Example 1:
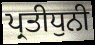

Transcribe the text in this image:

ਪ੍ਰਤੀਧੁਨੀ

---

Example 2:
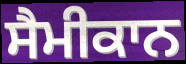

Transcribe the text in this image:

ਸੈਮੀਕਾਨ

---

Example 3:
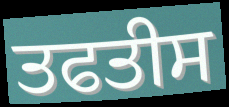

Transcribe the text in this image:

ਤਫਤੀਸ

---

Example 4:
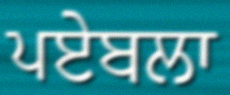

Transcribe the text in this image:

ਪਏਬਲਾ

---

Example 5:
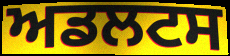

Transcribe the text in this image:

ਅਡਲਟਸ